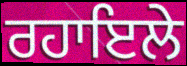
ਰਹਾਇਲੇ